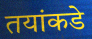
तयांकडे